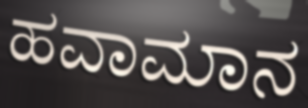
ಹವಾಮಾನ